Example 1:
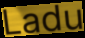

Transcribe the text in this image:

Ladu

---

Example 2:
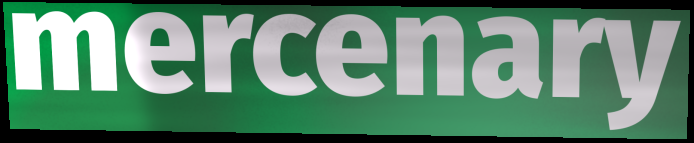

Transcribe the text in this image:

mercenary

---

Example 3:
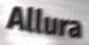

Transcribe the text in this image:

Allura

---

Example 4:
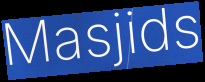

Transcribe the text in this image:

Masjids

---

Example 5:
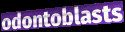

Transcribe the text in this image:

odontoblasts